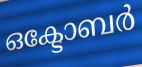
ഒക്ടോബർ